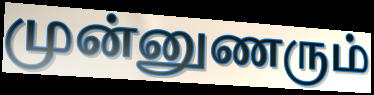
முன்னுணரும்